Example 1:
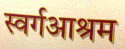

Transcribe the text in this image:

स्वर्गआश्रम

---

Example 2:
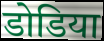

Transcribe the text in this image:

डोडिया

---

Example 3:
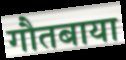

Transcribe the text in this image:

गौतबाया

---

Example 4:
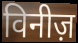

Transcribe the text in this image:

विनीज़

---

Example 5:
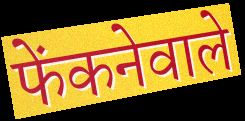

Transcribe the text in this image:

फेंकनेवाले